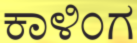
ಕಾಳಿಂಗ